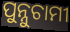
ପୁନ୍ନୁଚାମୀ